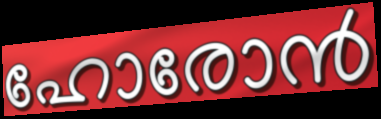
ഹോരോൻ